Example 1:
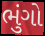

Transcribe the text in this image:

ભુંગો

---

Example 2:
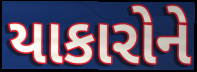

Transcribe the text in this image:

યાકારોને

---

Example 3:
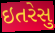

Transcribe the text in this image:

ઇતરેસુ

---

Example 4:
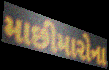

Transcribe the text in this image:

માછીમારોના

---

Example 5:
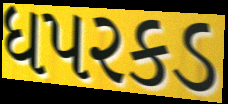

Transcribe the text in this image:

ધપરકડ